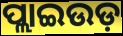
ପ୍ଲାଇଉଡ଼